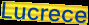
Lucrece